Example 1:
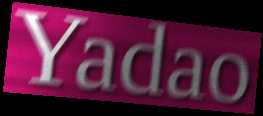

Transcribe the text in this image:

Yadao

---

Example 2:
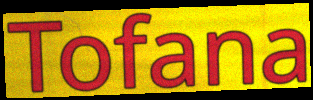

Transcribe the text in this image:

Tofana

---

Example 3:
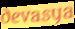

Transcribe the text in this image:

devasya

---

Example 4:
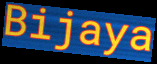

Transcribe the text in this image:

Bijaya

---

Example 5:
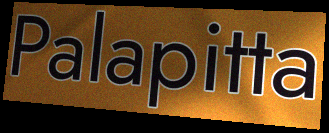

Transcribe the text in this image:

Palapitta